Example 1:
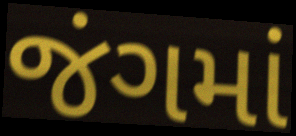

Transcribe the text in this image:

જંગમાં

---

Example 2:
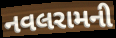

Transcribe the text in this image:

નવલરામની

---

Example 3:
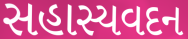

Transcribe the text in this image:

સહાસ્યવદન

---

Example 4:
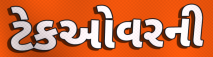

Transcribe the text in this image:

ટેકઓવરની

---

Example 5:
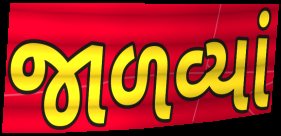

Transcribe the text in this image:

જાળવ્યાં